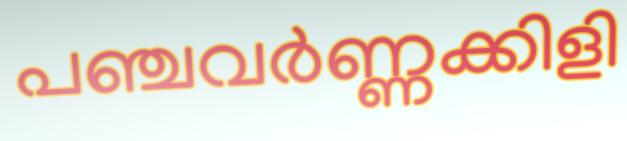
പഞ്ചവർണ്ണക്കിളി